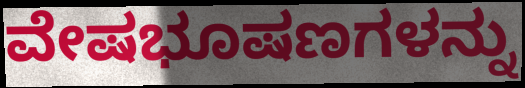
ವೇಷಭೂಷಣಗಳನ್ನು